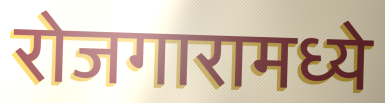
रोजगारामध्ये